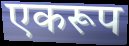
एकरूप